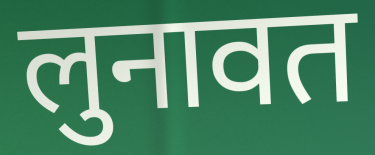
लुनावत